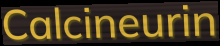
Calcineurin